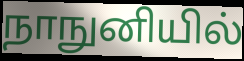
நாநுனியில்